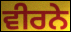
ਵੀਰਨੇ